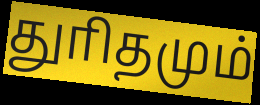
துரிதமும்